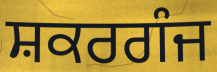
ਸ਼ਕਰਗੰਜ